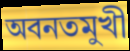
অবনতমুখী